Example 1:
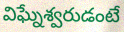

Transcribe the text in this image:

విఘ్నేశ్వరుడంటే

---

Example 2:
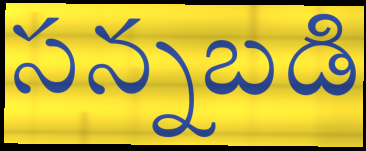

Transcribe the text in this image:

సన్నబడి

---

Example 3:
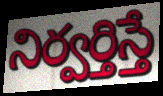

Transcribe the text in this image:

నిర్వర్తిస్తే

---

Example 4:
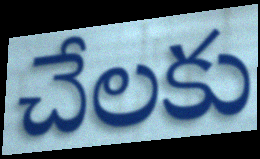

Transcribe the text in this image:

చేలకు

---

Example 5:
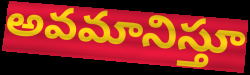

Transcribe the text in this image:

అవమానిస్తూ